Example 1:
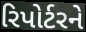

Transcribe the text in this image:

રિપોર્ટરને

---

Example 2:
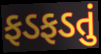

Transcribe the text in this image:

ફડફડતું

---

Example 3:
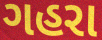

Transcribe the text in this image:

ગહરા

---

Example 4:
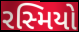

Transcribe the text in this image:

રસ્મિયો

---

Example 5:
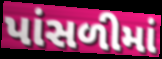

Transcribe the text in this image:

પાંસળીમાં